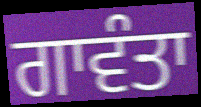
ਗਾਵੰਤਾ